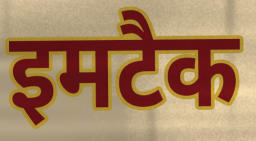
इमटैक